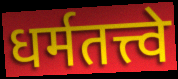
धर्मतत्त्वे